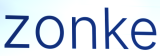
zonke